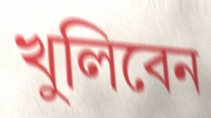
খুলিবেন